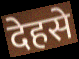
देहसे